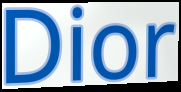
Dior